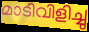
മാടിവിളിച്ചു